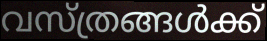
വസ്ത്രങ്ങൾക്ക്